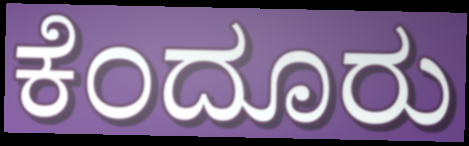
ಕೆಂದೂರು